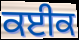
ਕਈਕ